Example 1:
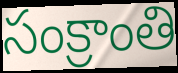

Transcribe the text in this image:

సంక్రాంతి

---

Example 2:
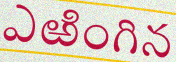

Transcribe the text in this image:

ఎఱింగిన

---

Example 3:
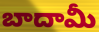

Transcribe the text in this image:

బాదామీ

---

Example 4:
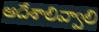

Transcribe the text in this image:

ఆదేశాలివ్వాలి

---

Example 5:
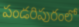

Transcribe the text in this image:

పండరిపురంలో